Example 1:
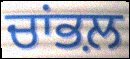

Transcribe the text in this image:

ਚਾਂਭਲ਼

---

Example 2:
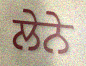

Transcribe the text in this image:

ਲੇਨੇ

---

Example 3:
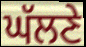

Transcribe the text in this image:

ਘੱਲਣੇ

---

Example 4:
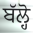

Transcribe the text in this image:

ਬੱਲ੍ਹੋ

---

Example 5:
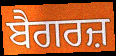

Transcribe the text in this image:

ਬੈਗਰਜ਼